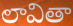
లావితా